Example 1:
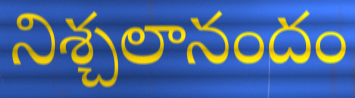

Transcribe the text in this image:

నిశ్చలానందం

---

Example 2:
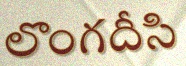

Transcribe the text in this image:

లొంగదీసి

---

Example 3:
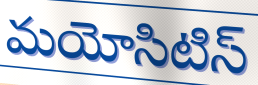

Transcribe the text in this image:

మయోసిటిస్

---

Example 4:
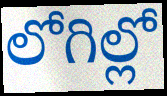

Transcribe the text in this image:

లోగిల్లో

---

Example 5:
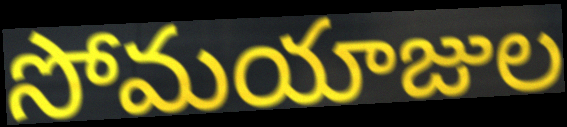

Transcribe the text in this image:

సోమయాజుల